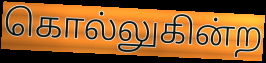
கொல்லுகின்ற